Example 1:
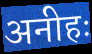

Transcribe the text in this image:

अनीहः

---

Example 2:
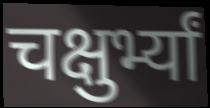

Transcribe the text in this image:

चक्षुर्भ्यां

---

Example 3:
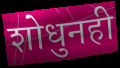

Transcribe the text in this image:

शोधुनही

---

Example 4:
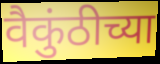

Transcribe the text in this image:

वैकुंठीच्या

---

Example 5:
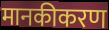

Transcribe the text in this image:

मानकीकरण